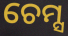
ଚେମ୍ସ